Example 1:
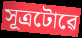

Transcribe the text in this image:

সূত্ৰটোৱে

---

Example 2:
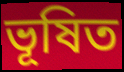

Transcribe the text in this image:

ভূষিত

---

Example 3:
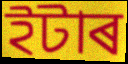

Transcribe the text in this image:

ইটাৰ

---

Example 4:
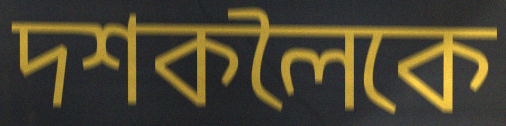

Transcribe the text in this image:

দশকলৈকে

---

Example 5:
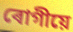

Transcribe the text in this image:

ৰোগীয়ে